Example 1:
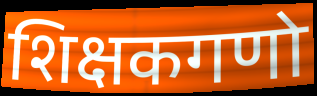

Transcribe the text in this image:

शिक्षकगणो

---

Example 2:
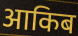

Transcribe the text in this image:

आकिब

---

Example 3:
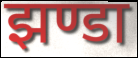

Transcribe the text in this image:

झण्डा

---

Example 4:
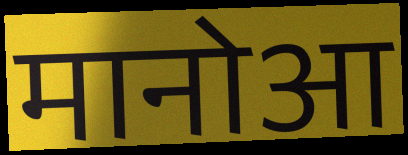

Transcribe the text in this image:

मानोआ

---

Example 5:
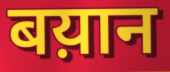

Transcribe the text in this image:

बय़ान